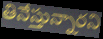
తినేస్తున్నారని